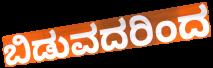
ಬಿಡುವದರಿಂದ